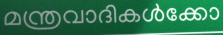
മന്ത്രവാദികൾക്കോ